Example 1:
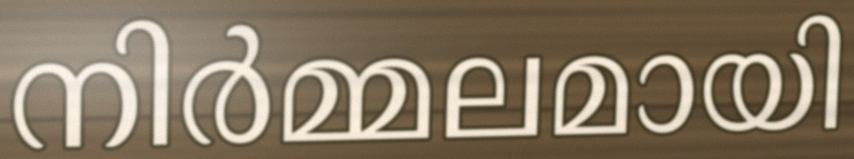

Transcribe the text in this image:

നിർമ്മലമായി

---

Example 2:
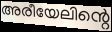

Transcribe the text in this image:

അരീയേലിന്റെ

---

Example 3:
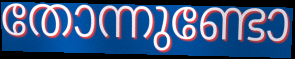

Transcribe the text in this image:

തോന്നുണ്ടോ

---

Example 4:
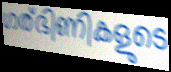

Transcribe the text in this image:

ഗര്ഭിണികളുടെ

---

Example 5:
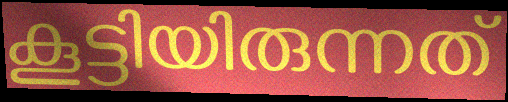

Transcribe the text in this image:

കൂട്ടിയിരുന്നത്